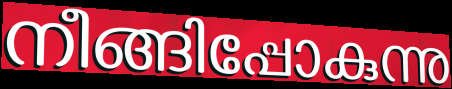
നീങ്ങിപ്പോകുന്നു